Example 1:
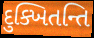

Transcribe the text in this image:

દુક્ખિતન્તિ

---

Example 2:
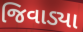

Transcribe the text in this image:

જિવાડ્યા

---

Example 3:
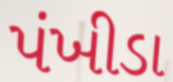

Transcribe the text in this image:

પંખીડા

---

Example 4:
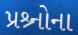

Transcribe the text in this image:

પ્રશ્ર્નોના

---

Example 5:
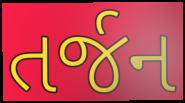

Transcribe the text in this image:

તર્જન